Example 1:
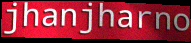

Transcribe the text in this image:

jhanjharno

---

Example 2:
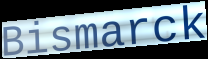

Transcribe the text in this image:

Bismarck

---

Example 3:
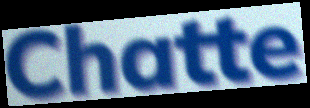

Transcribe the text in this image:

Chatte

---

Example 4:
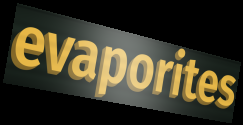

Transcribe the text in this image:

evaporites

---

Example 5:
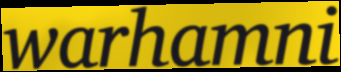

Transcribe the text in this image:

warhamni